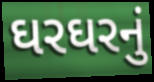
ઘરઘરનું